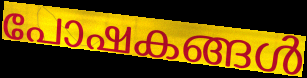
പോഷകങ്ങൾ